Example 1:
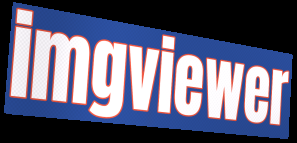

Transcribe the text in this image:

imgviewer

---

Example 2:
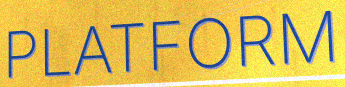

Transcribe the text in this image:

PLATFORM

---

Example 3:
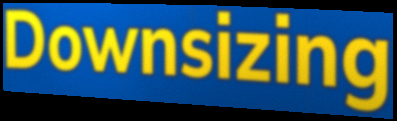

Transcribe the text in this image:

Downsizing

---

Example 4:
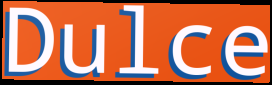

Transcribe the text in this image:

Dulce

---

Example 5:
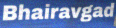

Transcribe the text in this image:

Bhairavgad